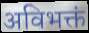
अविभक्तं